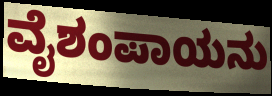
ವೈಶಂಪಾಯನು